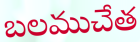
బలముచేత